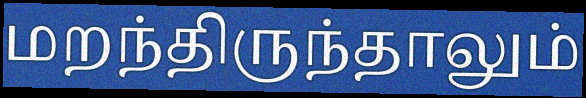
மறந்திருந்தாலும்